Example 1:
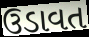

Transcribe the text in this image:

ઉડાવત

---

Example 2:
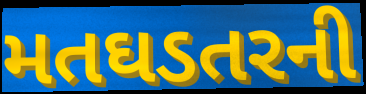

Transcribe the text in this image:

મતઘડતરની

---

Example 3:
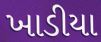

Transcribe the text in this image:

ખાડીયા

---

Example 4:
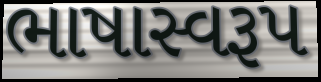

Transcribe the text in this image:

ભાષાસ્વરૂપ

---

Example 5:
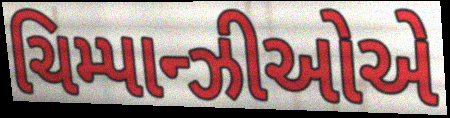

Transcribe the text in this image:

ચિમ્પાન્ઝીઓએ